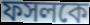
ফসলকে